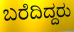
ಬರೆದಿದ್ದರು